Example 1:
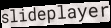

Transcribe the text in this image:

slideplayer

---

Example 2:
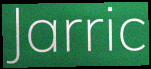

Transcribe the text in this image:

Jarric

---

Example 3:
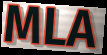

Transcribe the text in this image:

MLA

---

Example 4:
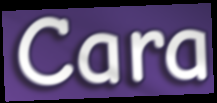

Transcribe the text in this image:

Cara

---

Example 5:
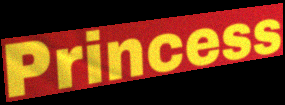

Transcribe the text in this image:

Princess